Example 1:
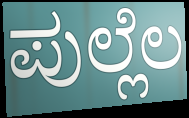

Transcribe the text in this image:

ಪುಲ್ಲೆಲ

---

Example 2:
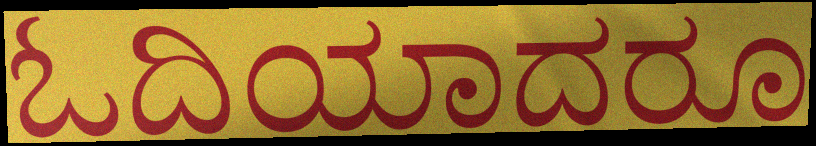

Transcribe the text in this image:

ಓದಿಯಾದರೂ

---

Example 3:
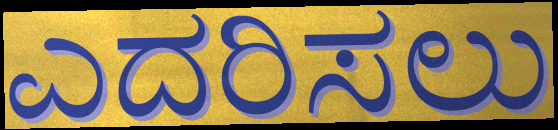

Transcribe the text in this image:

ಎದರಿಸಲು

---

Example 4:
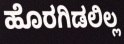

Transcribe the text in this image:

ಹೊರಗಿಡಲಿಲ್ಲ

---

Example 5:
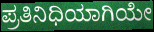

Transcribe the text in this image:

ಪ್ರತಿನಿಧಿಯಾಗಿಯೇ